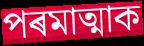
পৰমাত্মাক